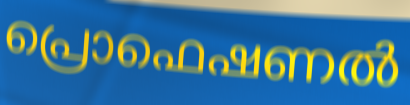
പ്രൊഫെഷണൽ